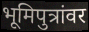
भूमिपुत्रांवर